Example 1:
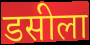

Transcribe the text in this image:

डसीला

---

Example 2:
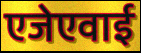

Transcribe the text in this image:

एजेएवाई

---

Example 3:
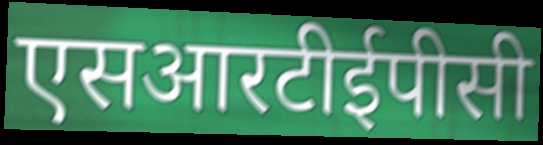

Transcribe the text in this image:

एसआरटीईपीसी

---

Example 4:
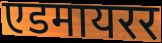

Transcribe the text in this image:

एडमायरर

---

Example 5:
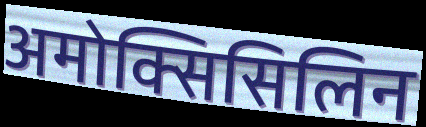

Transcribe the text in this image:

अमोक्सिसिलिन